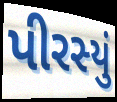
પીરસ્યું